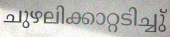
ചുഴലിക്കാറ്റടിച്ചു്